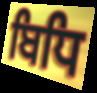
ਬਿਧਿ